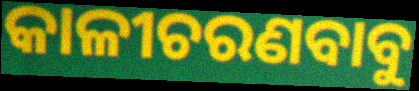
କାଳୀଚରଣବାବୁ